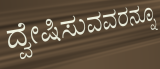
ದ್ವೇಷಿಸುವವರನ್ನೂ